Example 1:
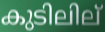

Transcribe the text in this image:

കുടിലില്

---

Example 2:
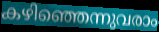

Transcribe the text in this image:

കഴിഞ്ഞെന്നുവരാം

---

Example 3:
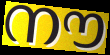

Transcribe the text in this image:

നൗ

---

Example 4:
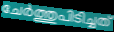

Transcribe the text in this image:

ചേർത്തുപിടിച്ചത്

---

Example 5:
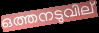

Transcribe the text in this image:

ഒത്തനടുവില്